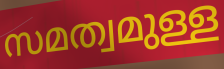
സമത്വമുള്ള